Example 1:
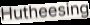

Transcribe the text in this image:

Hutheesing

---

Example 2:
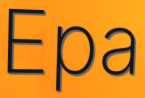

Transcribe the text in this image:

Epa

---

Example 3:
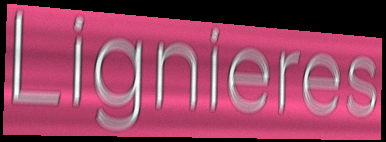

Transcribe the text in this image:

Lignieres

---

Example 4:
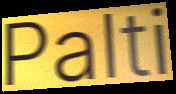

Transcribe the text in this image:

Palti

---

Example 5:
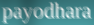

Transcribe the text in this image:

payodhara